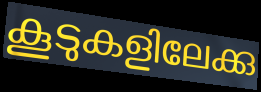
കൂടുകളിലേക്കു